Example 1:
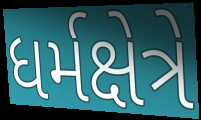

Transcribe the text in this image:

ધર્મક્ષેત્રે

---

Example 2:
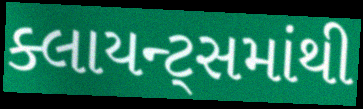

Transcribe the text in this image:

ક્લાયન્ટ્સમાંથી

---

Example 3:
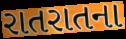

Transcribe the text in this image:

રાતરાતના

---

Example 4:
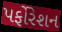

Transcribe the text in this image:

પર્ફોરેશન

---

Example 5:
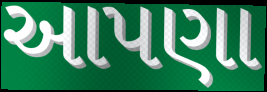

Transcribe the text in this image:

આપણા